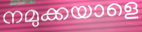
നമുക്കയാളെ